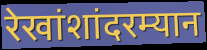
रेखांशांदरम्यान